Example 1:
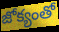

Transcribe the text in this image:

జోక్యంతో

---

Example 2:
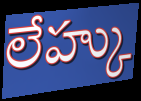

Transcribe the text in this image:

లేహ్కు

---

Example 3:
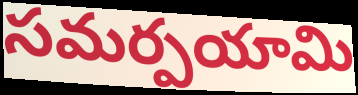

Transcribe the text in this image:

సమర్పయామి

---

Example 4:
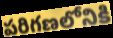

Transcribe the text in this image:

పరిగణలోనికి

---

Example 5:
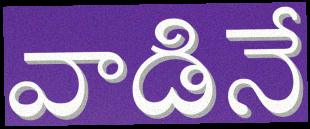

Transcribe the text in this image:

వాడినే